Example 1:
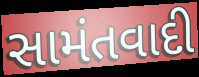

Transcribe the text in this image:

સામંતવાદી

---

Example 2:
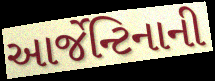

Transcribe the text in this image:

આર્જેન્ટિનાની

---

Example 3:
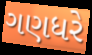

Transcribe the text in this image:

ગણધરે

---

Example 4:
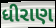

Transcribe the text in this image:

ધીરાણ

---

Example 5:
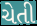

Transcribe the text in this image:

ચેતી